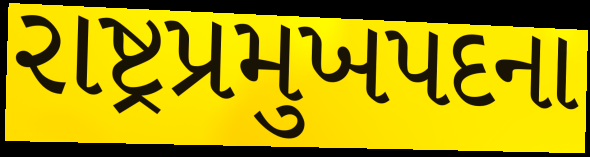
રાષ્ટ્રપ્રમુખપદના